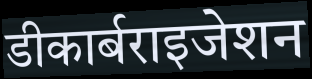
डीकार्बराइजेशन